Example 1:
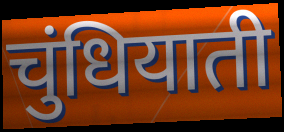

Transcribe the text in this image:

चुंधियाती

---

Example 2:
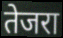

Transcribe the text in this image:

तेजरा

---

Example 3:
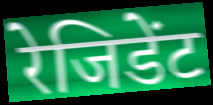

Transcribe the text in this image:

रेजिडेंट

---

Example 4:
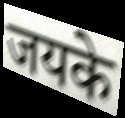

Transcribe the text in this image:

जयके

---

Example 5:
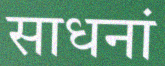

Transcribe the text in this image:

साधनां